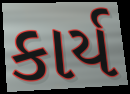
કાર્ય